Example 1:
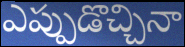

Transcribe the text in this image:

ఎప్పుడొచ్చినా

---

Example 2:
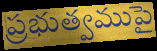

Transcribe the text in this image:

ప్రభుత్వముపై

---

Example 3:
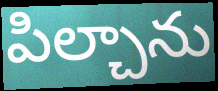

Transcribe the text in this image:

పిల్చాను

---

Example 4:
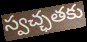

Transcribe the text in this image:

స్వచ్ఛతకు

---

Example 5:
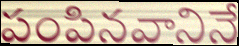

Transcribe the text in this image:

పంపినవానినే